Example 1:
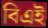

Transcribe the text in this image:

বিএই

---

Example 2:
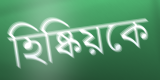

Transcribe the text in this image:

হিষ্কিয়কে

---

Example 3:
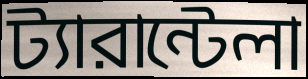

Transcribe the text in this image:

ট্যারান্টেলা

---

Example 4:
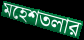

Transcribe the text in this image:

মহেশতলার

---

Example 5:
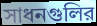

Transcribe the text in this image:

সাধনগুলির